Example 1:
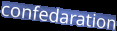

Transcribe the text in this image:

confedaration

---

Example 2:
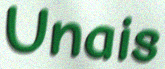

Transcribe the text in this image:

Unais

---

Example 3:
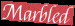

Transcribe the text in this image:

Marbled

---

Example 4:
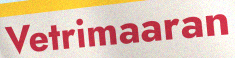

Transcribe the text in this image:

Vetrimaaran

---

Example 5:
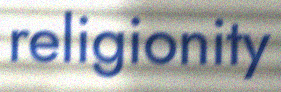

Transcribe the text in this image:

religionity